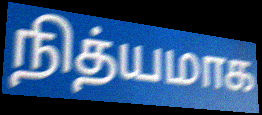
நித்யமாக